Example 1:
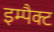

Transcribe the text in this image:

इम्पैक्ट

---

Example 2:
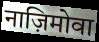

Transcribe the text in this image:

नाज़िमोवा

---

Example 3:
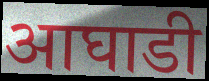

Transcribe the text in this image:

आघाडी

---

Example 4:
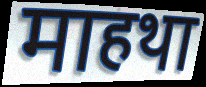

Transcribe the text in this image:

माहथा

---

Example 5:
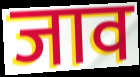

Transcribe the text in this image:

जाव